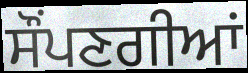
ਸੌਂਪਣਗੀਆਂ